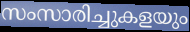
സംസാരിച്ചുകളയും